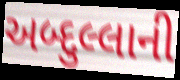
અબ્દુલ્લાની